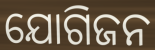
ଯୋଗିଜନ